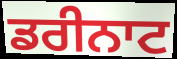
ਡਰੀਨਾਟ